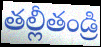
తల్లీతండ్రి